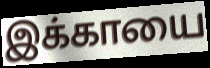
இக்காயை